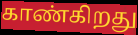
காண்கிறது